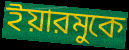
ইয়ারমুকে